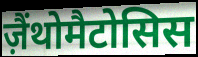
ज़ैंथोमैटोसिस